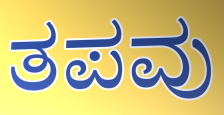
ತಪವು